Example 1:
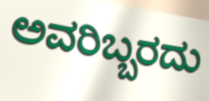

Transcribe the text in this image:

ಅವರಿಬ್ಬರದು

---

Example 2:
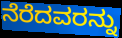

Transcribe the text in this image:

ನೆರೆದವರನ್ನು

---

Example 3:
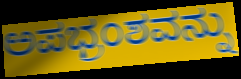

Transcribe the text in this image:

ಅಪಭ್ರಂಶವನ್ನು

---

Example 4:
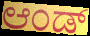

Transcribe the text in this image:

ಆಂಡ್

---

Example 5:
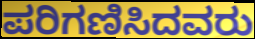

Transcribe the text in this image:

ಪರಿಗಣಿಸಿದವರು